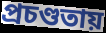
প্রচণ্ডতায়